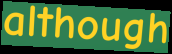
although